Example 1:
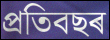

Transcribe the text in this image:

প্ৰতিবছৰ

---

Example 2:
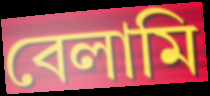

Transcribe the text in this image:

বেলামি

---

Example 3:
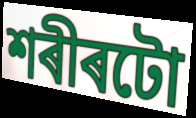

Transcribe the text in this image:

শৰীৰটো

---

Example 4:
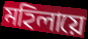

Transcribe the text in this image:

মহিলায়ে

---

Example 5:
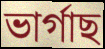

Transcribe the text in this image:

ভাৰ্গাছ